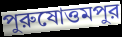
পুরুষোত্তমপুর